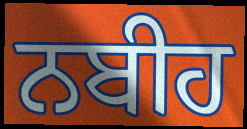
ਨਬੀਹ